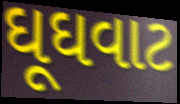
ઘૂઘવાટ